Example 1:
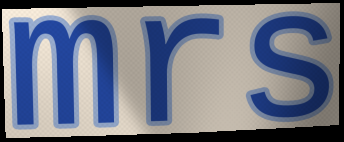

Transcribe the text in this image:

mrs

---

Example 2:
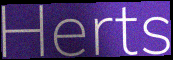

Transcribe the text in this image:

Herts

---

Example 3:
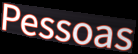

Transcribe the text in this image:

Pessoas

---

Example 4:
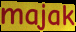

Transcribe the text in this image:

majak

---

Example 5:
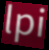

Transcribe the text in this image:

lpi